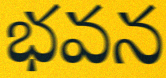
భవన